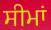
ਸੀਮਾਂ